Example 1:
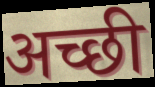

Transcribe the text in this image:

अच्‍छी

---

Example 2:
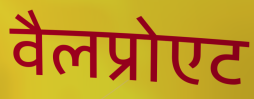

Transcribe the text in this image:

वैलप्रोएट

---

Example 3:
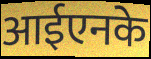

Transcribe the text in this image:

आईएनके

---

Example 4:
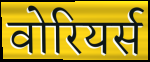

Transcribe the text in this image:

वोरियर्स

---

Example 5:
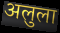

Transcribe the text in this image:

अलुला